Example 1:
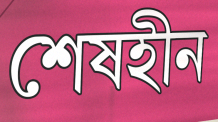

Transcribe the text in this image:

শেষহীন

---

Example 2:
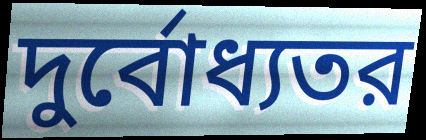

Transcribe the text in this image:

দুর্বোধ্যতর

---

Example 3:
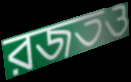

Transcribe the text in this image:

রজতও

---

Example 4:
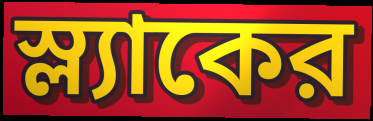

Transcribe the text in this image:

স্ল্যাকের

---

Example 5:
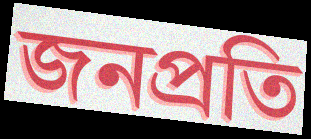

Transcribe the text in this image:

জনপ্রতি